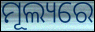
ମୂଲ୍ୟରେ